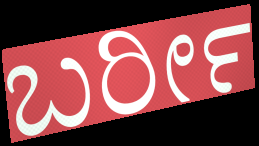
ಬರ್ರೀ